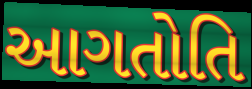
આગતોતિ